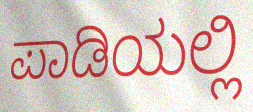
ಪಾಡಿಯಲ್ಲಿ